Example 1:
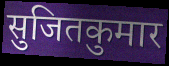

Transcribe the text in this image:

सुजितकुमार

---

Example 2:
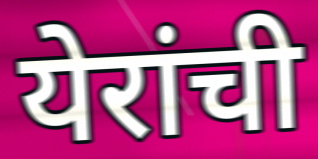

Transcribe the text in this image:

येरांची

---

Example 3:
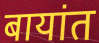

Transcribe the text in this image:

बायांत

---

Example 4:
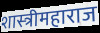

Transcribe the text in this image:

शास्त्रीमहाराज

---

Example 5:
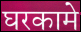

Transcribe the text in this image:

घरकामे